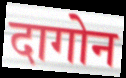
दागोन